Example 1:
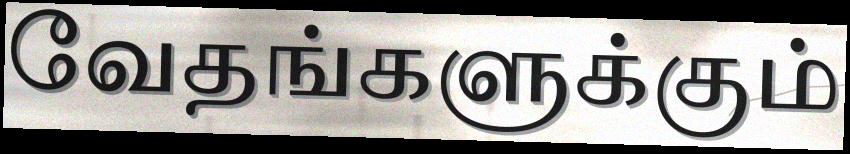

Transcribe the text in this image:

வேதங்களுக்கும்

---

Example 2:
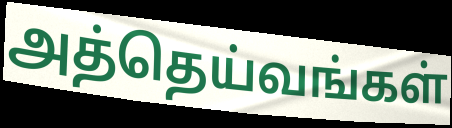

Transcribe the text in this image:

அத்தெய்வங்கள்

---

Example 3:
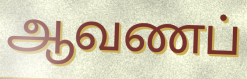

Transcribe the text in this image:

ஆவணப்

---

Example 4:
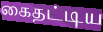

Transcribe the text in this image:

கைதட்டிய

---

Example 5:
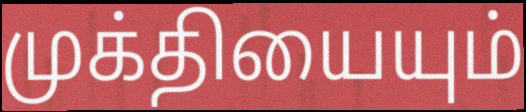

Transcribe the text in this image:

முக்தியையும்